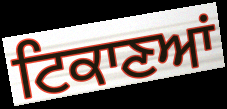
ਟਿਕਾਣਆਂ